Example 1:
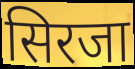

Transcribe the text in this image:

सिरजा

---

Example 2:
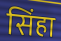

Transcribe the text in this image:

सिंहा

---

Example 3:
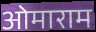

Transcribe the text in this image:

ओमाराम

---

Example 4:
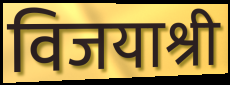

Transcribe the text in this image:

विजयाश्री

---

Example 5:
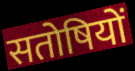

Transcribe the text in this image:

सतोषियों